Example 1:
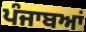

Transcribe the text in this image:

ਪੰਜਾਬਆਂ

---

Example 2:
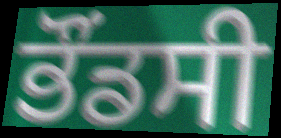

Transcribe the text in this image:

ਭੌਂਡਸੀ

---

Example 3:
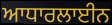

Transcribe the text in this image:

ਆਧਾਰਲਾਈਨ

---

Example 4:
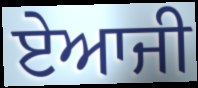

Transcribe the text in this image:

ਏਆਜੀ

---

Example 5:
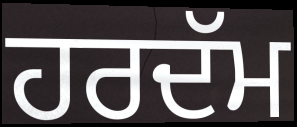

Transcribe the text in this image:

ਹਰਦੱਮ